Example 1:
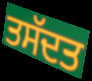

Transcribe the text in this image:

ਤਸੱਦਤ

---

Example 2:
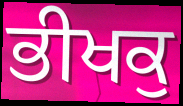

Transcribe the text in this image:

ਭੀਖਕੁ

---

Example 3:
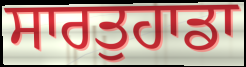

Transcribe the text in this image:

ਸਾਰਤੁਹਾਡਾ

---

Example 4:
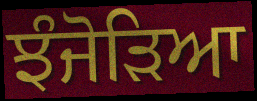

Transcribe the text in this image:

ਝੰਜੋੜਿਆ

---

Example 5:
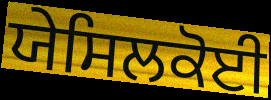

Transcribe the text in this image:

ਯੇਸਿਲਕੋਈ